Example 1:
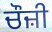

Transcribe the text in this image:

ਚੌਜ਼ੀ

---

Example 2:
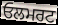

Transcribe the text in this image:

ਓਲਮਰਟ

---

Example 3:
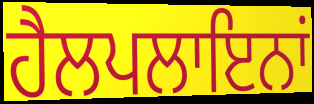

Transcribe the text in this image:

ਹੈਲਪਲਾਇਨਾਂ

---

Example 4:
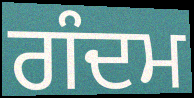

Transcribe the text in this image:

ਗੰਦਮ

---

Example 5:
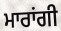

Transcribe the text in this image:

ਮਾਰਾਂਗੀ